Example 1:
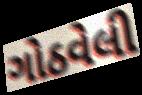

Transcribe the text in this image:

ગોઠવેલી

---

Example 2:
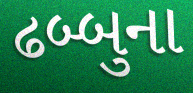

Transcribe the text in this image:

ઢબ્બુના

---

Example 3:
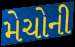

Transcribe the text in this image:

મેચોની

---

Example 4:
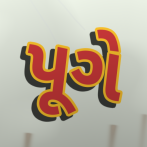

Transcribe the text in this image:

પૂગે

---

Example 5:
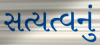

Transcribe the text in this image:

સત્યત્વનું